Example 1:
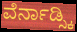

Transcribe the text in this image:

ವೆರ್ನಾಡ್ಸ್ಕಿ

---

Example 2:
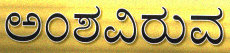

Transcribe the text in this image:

ಅಂಶವಿರುವ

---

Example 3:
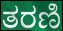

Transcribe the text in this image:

ತರಣಿ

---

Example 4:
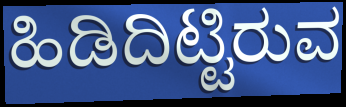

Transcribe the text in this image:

ಹಿಡಿದಿಟ್ಟಿರುವ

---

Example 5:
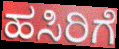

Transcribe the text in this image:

ಹಸಿರಿಗೆ